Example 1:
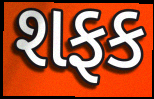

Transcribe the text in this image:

શફક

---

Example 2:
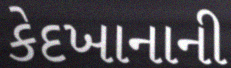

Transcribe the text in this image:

કેદખાનાની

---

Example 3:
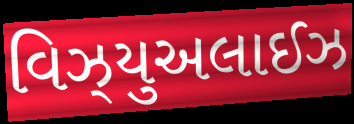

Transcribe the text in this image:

વિઝ્યુઅલાઈઝ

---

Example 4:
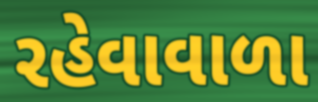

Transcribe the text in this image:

રહેવાવાળા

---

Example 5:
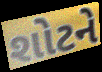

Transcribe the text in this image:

શોટને